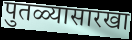
पुतळ्यासारखा